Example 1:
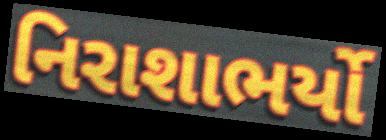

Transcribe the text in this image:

નિરાશાભર્યો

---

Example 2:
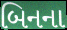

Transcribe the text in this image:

બિનના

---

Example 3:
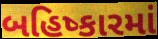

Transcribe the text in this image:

બહિષ્કારમાં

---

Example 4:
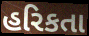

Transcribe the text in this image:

હરિકતા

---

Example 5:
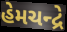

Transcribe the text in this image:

હેમચન્દ્રે